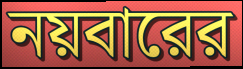
নয়বারের